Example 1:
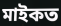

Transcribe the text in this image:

মাইকত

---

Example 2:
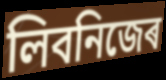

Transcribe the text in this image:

লিবনিজেৰ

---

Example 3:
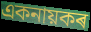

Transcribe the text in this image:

একনায়কৰ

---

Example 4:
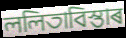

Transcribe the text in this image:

ললিতাবিস্তাৰ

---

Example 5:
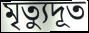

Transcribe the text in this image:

মৃত্যুদূত